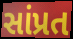
સાંપ્રત